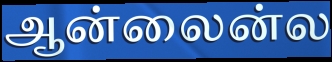
ஆன்லைன்ல